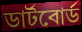
ডার্টবোর্ড